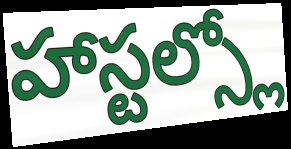
హాస్టల్స్లో